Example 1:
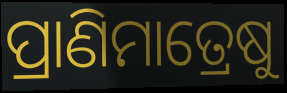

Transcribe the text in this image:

ପ୍ରାଣିମାତ୍ରେଷୁ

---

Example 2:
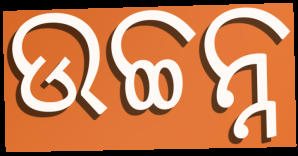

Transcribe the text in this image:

ଉଚ୍ଚନ୍ନ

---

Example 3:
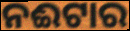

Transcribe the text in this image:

ନଈଟାର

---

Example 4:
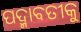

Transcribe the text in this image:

ପଦ୍ମାବତୀକୁ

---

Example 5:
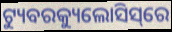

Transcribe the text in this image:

ଟ୍ୟୁବରକ୍ୟୁଲୋସିସ୍‌ରେ